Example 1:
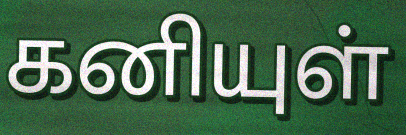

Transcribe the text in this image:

கனியுள்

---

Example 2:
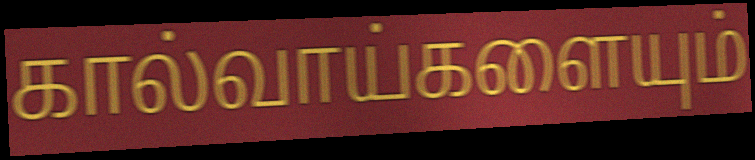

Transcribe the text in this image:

கால்வாய்களையும்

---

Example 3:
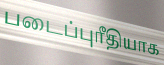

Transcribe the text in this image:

படைப்புரீதியாக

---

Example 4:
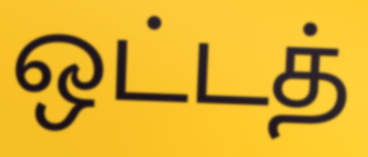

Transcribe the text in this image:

ஒட்டத்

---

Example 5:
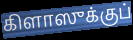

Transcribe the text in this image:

கிளாஸுக்குப்